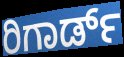
ರಿಗಾರ್ಡ್